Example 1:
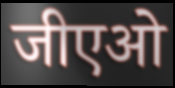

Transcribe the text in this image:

जीएओ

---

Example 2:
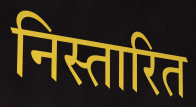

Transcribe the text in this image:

निस्तारित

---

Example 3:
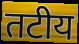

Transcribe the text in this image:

तटीय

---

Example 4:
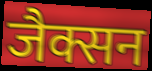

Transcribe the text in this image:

जैक्सन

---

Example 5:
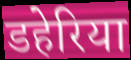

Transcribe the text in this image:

डहेरिया